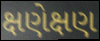
ક્ષણેક્ષણ